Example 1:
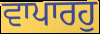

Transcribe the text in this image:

ਵਾਪਾਰਹੁ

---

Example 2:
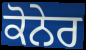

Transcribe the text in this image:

ਕੋਨੇਰ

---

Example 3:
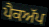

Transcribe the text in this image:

ਪੈਕਅੱਪ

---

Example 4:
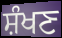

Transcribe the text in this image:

ਸ਼ੰਖਣ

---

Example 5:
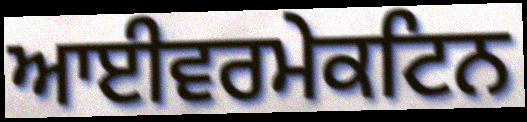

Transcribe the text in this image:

ਆਈਵਰਮੇਕਟਿਨ